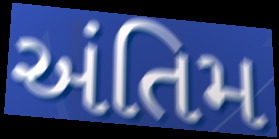
અંતિમ